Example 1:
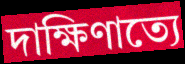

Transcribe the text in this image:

দাক্ষিণাত্যে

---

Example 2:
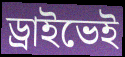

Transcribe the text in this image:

ড্রাইভেই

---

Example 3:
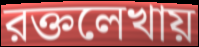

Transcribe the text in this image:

রক্তলেখায়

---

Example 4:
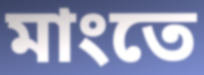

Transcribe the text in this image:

মাংতে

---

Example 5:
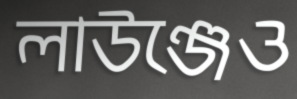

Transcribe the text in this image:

লাউঞ্জেও